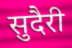
सुदैरी